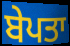
ਬੇਪਤਾ